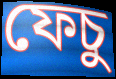
ফেচু